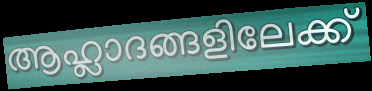
ആഹ്ലാദങ്ങളിലേക്ക്